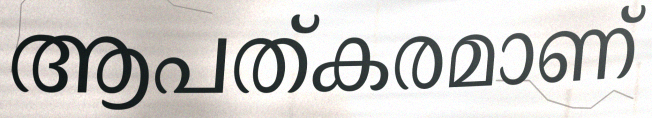
ആപത്കരമാണ്